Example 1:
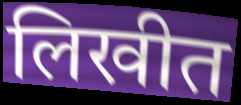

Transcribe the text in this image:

लिखीत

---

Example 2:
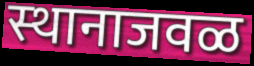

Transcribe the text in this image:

स्थानाजवळ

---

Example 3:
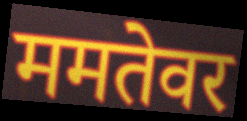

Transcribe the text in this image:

ममतेवर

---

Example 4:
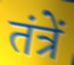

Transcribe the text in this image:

तंत्रें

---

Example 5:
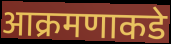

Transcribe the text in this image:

आक्रमणाकडे